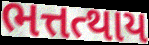
ભત્તત્થાય